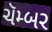
ચૅમ્બર